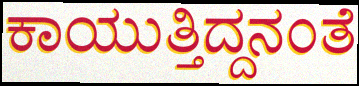
ಕಾಯುತ್ತಿದ್ದನಂತೆ